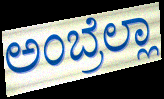
ಅಂಬ್ರೆಲ್ಲಾ